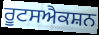
ਰੂਟਸਐਕਸ਼ਨ